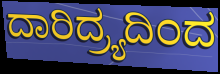
ದಾರಿದ್ರ್ಯದಿಂದ